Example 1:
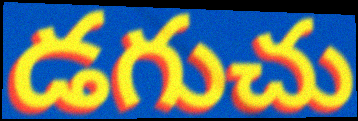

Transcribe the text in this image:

డగుచు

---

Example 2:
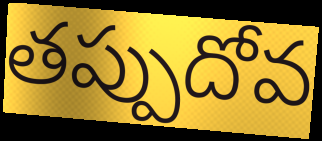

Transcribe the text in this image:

తప్పుదోవ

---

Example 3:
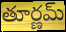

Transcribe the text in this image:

తూర్ణమ్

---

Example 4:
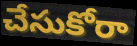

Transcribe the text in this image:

చేసుకోరా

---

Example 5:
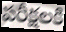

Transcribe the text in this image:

పరీక్షలకి